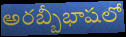
అరబ్బీభాషలో